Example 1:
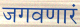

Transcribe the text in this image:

जगवणारं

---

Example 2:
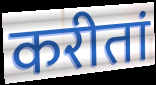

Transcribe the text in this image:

करीतां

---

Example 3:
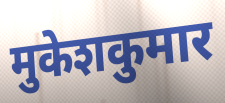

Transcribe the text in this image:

मुकेशकुमार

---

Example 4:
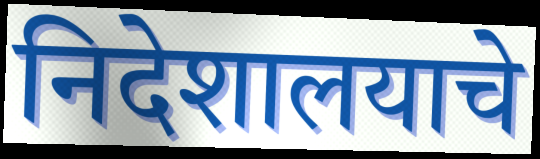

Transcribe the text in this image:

निदेशालयाचे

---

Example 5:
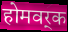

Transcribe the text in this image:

होमवर्क